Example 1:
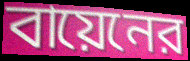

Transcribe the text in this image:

বায়েনের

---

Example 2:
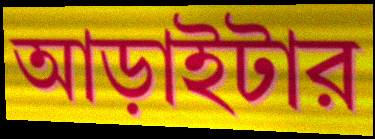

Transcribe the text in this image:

আড়াইটার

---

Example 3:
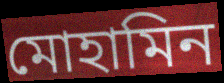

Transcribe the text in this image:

মোহামিন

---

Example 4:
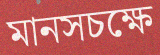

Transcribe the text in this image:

মানসচক্ষে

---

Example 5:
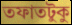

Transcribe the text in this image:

তফাতটুকু